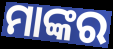
ମାଙ୍କର